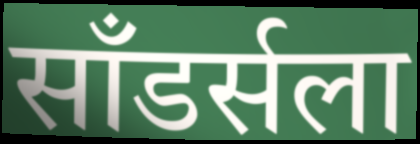
साँडर्सला